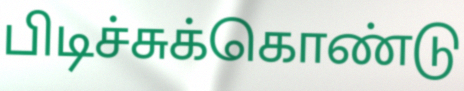
பிடிச்சுக்கொண்டு